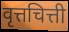
वृत्तचित्ती